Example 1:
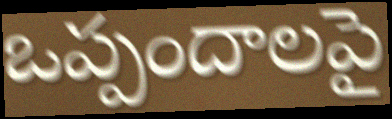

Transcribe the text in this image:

ఒప్పందాలపై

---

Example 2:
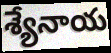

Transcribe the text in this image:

శ్యేనాయ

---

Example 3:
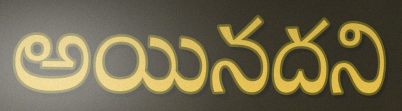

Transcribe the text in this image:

అయినదని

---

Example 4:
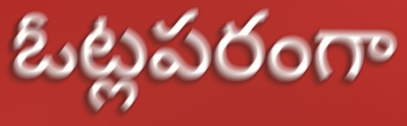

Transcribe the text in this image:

ఓట్లపరంగా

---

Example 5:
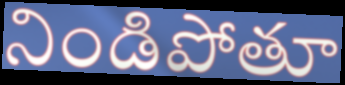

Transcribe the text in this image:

నిండిపోతూ